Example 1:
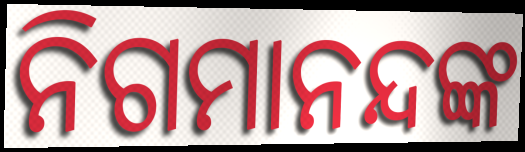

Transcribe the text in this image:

ନିଗମାନନ୍ଦଙ୍କ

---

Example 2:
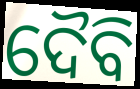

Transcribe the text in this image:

ଦୈବି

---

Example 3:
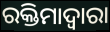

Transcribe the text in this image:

ରକ୍ତିମାଦ୍ୱାରା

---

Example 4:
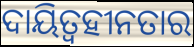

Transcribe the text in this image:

ଦାୟିତ୍ଵହୀନତାର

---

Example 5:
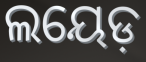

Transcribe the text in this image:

ଲୟେଡ଼